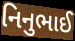
નિનુભાઈ